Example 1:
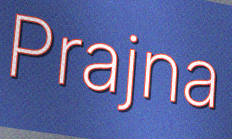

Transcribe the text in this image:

Prajna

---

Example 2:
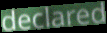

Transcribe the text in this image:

declared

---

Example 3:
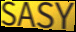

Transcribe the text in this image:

SASY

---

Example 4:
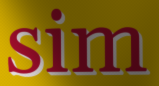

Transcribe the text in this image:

sim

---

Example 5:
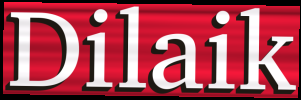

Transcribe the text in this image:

Dilaik